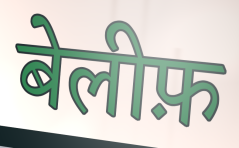
बेलीफ़